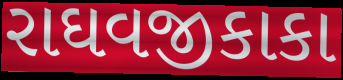
રાઘવજીકાકા